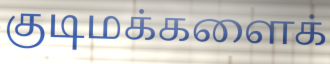
குடிமக்களைக்